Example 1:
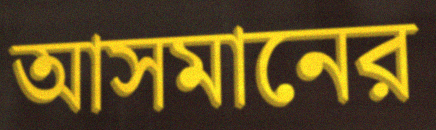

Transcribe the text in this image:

আসমানের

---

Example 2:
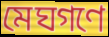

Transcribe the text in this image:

মেঘগণে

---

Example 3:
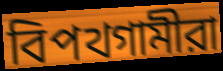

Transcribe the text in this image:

বিপথগামীরা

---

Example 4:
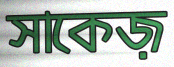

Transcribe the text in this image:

সাকেজ়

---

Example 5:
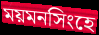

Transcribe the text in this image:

ময়মনসিংহে